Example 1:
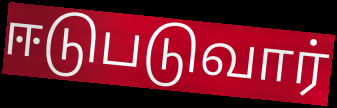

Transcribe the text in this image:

ஈடுபடுவார்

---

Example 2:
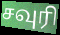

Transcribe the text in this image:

சவுரி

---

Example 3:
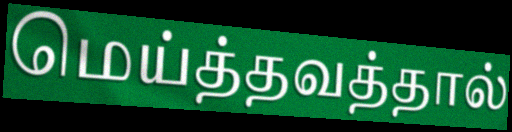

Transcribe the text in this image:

மெய்த்தவத்தால்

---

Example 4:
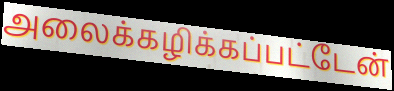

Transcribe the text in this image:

அலைக்கழிக்கப்பட்டேன்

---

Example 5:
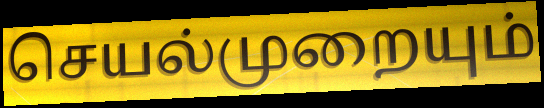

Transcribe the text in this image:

செயல்முறையும்